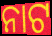
ନାଟ